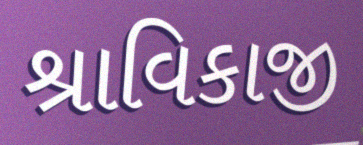
શ્રાવિકાજી